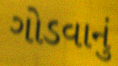
ગોડવાનું